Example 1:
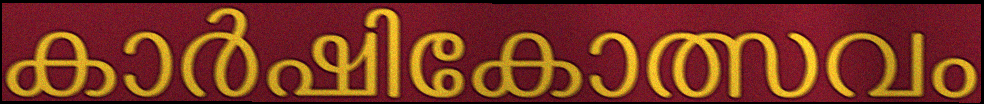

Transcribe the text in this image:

കാർഷികോത്സവം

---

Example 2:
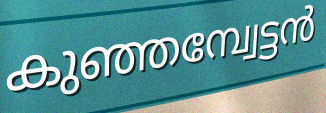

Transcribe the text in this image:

കുഞ്ഞമ്പ്വേട്ടൻ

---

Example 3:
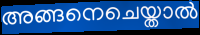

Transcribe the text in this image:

അങ്ങനെചെയ്താൽ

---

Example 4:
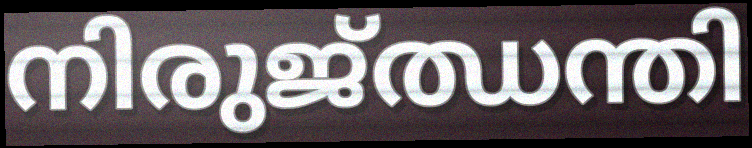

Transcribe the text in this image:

നിരുജ്ഝന്തി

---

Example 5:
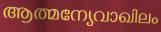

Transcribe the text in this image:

ആത്മന്യേവാഖിലം